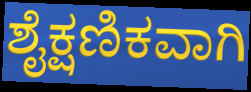
ಶೈಕ್ಷಣಿಕವಾಗಿ